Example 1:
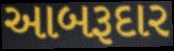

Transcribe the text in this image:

આબરૂદાર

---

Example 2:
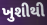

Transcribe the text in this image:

ખુશીથી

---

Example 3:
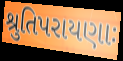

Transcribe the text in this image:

શ્રુતિપરાયણાઃ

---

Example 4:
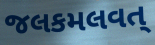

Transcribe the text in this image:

જલકમલવત્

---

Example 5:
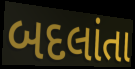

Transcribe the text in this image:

બદલાંતા